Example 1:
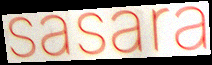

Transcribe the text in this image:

sasara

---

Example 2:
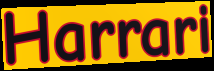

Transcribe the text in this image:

Harrari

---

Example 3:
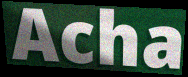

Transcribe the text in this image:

Acha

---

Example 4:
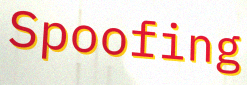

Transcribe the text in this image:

Spoofing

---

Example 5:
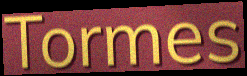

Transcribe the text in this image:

Tormes